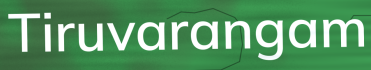
Tiruvarangam